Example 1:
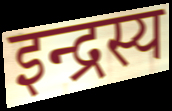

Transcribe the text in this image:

इन्द्रस्य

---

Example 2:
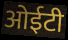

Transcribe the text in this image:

ओईटी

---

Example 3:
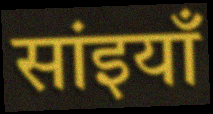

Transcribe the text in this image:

सांइयाँ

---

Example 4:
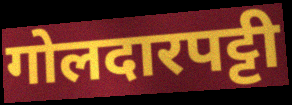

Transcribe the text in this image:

गोलदारपट्टी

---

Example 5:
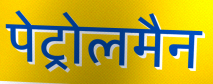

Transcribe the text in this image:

पेट्रोलमैन